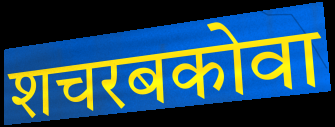
शचरबकोवा